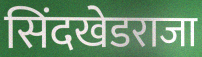
सिंदखेडराजा